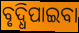
ବୃଦ୍ଧିପାଇବା